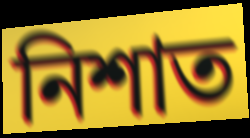
নিশাত